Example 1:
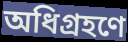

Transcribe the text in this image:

অধিগ্রহণে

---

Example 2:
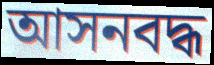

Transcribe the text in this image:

আসনবদ্ধ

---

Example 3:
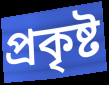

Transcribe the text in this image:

প্রকৃষ্ট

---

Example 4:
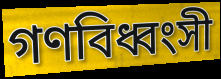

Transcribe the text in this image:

গণবিধ্বংসী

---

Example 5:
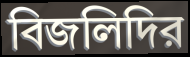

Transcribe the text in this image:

বিজলিদির